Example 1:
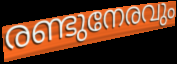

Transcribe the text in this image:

രണ്ടുനേരവും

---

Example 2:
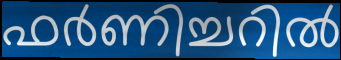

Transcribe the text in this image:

ഫർണിച്ചറിൽ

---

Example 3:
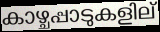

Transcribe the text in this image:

കാഴ്ചപ്പാടുകളില്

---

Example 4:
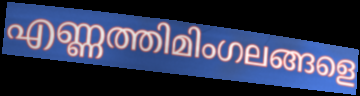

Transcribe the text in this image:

എണ്ണത്തിമിംഗലങ്ങളെ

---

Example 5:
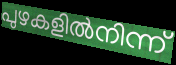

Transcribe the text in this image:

പുഴകളിൽനിന്ന്